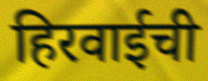
हिरवाईची